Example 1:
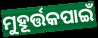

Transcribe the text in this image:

ମୁହୂର୍ତ୍ତକପାଇଁ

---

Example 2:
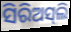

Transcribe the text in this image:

ସିରିଅସ୍‌ଲି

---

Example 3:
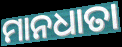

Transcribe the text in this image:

ମାନଧାତା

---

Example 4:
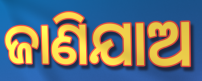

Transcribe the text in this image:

ଜାଣିଯାଅ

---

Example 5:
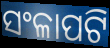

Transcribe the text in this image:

ସଂଳାପଟି